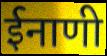
ईनाणी